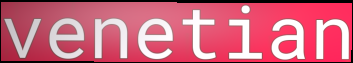
venetian